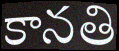
కానతి